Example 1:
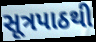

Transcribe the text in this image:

સૂત્રપાઠથી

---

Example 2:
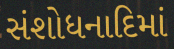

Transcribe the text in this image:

સંશોધનાદિમાં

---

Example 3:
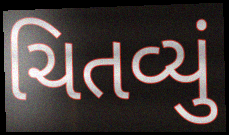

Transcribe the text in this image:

ચિતવ્યું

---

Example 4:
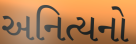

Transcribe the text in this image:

અનિત્યનો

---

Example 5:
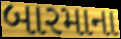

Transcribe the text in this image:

બારમાના